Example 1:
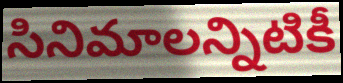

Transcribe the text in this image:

సినిమాలన్నిటికీ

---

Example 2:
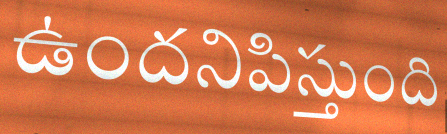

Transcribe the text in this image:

ఉందనిపిస్తుంది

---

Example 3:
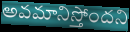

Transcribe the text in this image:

అవమానిస్తోందని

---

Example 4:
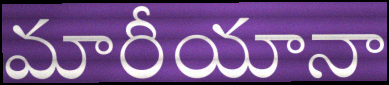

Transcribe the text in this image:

మారీయానా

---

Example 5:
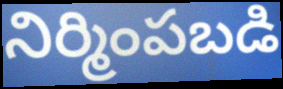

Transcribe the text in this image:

నిర్మింపబడి